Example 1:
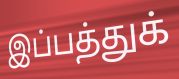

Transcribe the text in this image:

இப்பத்துக்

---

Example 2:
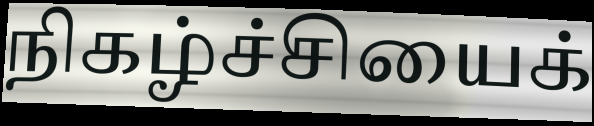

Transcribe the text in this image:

நிகழ்ச்சியைக்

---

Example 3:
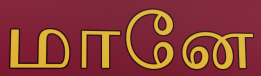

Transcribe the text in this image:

மானே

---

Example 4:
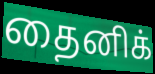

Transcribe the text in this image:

தைனிக்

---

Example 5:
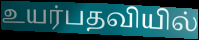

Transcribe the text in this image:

உயர்பதவியில்